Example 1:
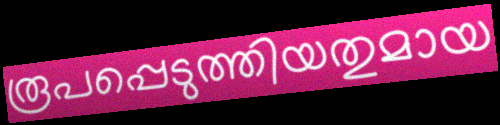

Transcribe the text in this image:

രൂപപ്പെടുത്തിയതുമായ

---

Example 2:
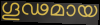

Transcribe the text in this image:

ഗൂഢമായ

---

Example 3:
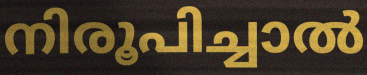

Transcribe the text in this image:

നിരൂപിച്ചാൽ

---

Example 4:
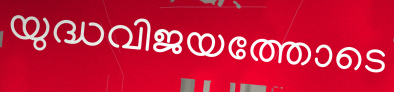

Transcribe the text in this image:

യുദ്ധവിജയത്തോടെ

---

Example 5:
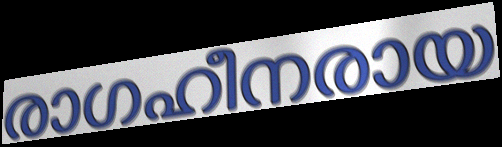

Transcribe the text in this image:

രാഗഹീനരായ